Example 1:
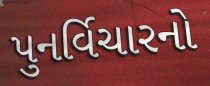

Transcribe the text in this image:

પુનર્વિચારનો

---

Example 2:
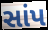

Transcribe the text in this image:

સાંપ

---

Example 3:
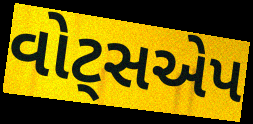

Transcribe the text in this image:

વોટ્સએપ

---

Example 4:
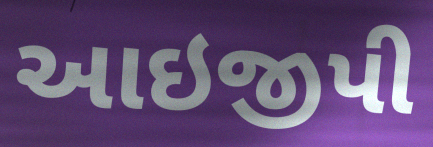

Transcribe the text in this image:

આઇજીપી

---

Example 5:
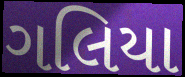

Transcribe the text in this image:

ગલિયા